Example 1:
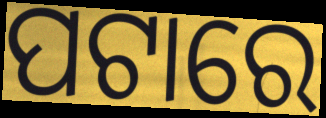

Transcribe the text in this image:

ପଟାରେ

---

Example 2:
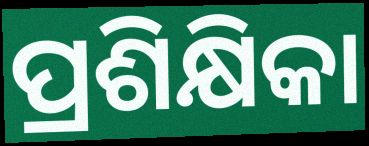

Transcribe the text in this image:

ପ୍ରଶିକ୍ଷିକା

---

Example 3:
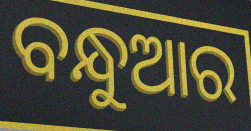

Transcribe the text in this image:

ବନ୍ଧୁଆର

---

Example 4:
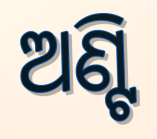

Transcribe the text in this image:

ଅଣ୍ଟି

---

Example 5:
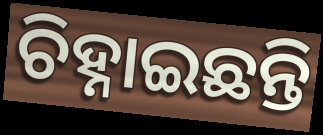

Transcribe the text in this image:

ଚିହ୍ନାଇଛନ୍ତି